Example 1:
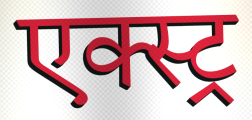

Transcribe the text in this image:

एक्स्ट्र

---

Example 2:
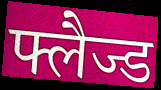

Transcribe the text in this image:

फ्लैज्ड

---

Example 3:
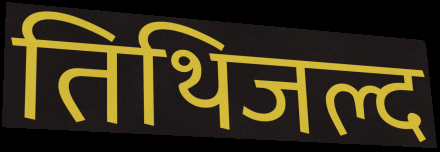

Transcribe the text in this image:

तिथिजल्द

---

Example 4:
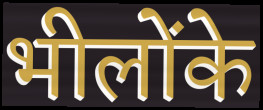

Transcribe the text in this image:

भीलोंके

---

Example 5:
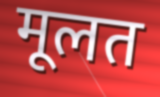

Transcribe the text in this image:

मूलत